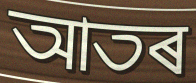
আতৰ